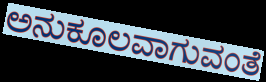
ಅನುಕೂಲವಾಗುವಂತೆ